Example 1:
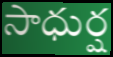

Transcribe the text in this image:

సాధుర్ష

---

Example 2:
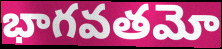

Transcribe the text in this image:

భాగవతమో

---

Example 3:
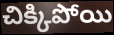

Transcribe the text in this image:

చిక్కిపోయి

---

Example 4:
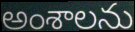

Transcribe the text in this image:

అంశాలను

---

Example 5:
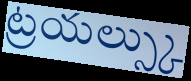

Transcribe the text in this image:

ట్రయల్స్కు